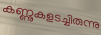
കണ്ണുകളടച്ചിരുന്നു